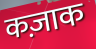
कज़ाक